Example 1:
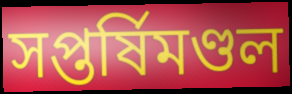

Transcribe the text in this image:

সপ্তর্ষিমণ্ডল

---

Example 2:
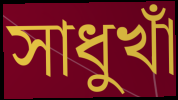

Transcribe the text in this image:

সাধুখাঁ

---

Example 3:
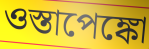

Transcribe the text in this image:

ওস্তাপেঙ্কো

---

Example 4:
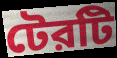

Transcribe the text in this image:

টেরটি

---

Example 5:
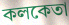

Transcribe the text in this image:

কলকেতা